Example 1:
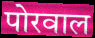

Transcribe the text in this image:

पोरवाल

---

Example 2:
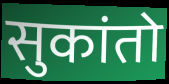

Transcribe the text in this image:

सुकांतो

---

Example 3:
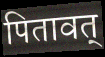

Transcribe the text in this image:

पितावत्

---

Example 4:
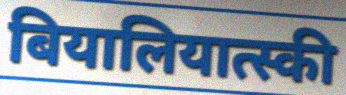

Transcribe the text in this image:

बियालियात्स्की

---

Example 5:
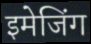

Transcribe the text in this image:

इमेजिंग